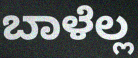
ಬಾಳೆಲ್ಲ